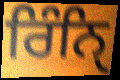
ਰਿੰਨਿੑ